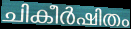
ചികീർഷിതം